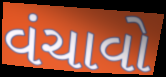
વંચાવો